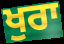
ਖੁਰਾ